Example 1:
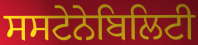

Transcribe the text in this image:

ਸਸਟੇਨੇਬਿਲਿਟੀ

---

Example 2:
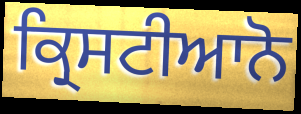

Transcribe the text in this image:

ਕ੍ਰਿਸਟੀਆਨੋ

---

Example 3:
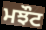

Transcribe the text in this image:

ਮਝੌਟ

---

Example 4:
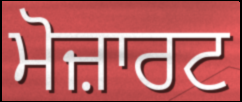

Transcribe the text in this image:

ਮੋਜ਼ਾਰਟ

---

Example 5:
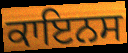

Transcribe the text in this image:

ਕਾਇਨਸ